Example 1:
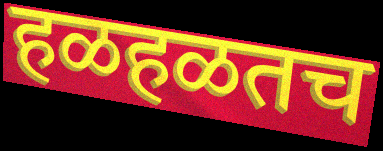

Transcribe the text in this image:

हळहळतच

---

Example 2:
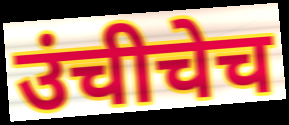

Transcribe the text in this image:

उंचीचेच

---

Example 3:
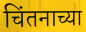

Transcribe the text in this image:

चिंतनाच्या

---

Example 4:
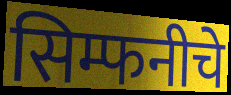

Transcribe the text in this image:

सिम्फनीचे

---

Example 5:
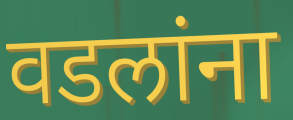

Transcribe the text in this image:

वडलांना